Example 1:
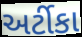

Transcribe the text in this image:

અર્ટીકા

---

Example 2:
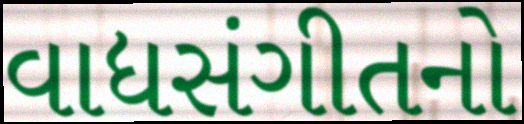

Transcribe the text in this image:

વાદ્યસંગીતનો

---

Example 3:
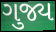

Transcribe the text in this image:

ગુજ્ય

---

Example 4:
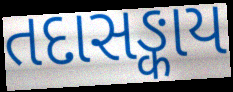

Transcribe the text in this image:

તદાસઙ્કાય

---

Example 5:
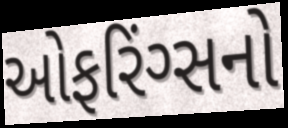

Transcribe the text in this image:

ઓફરિંગ્સનો